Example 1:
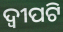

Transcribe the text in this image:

ଦ୍ୱୀପଟି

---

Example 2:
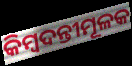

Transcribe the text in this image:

କିମ୍ବଦନ୍ତୀମୂଳକ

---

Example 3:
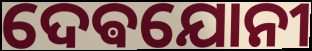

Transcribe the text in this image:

ଦେଵଯୋନୀ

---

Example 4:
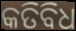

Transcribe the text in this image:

କତିବିଧ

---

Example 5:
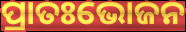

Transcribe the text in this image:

ପ୍ରାତଃଭୋଜନ